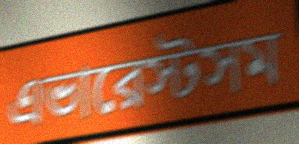
এভারেস্টসম